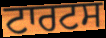
ਟਾਰਟਸ